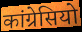
कांग्रेसियो